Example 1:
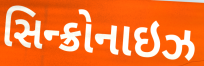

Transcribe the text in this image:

સિન્ક્રોનાઇઝ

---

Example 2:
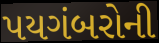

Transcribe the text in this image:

પયગંબરોની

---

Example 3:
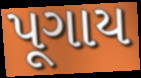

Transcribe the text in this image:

પૂગાય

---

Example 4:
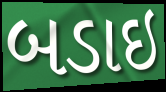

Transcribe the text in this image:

બડાઇ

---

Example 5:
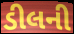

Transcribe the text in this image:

ડીલની